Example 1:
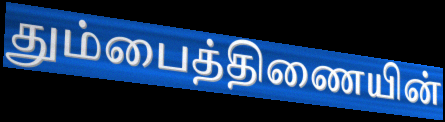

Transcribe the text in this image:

தும்பைத்திணையின்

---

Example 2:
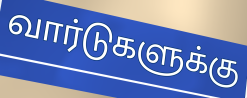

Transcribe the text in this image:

வார்டுகளுக்கு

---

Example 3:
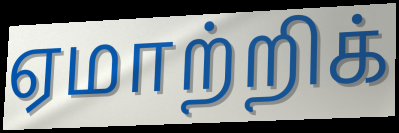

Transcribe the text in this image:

ஏமாற்றிக்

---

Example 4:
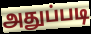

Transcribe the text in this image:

அதுப்படி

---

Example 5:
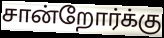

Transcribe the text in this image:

சான்றோர்க்கு